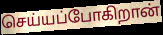
செய்யப்போகிறான்